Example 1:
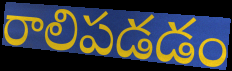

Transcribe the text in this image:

రాలిపడడం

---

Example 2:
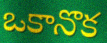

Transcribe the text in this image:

ఒకానొక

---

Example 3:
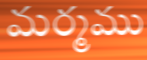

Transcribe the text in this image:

మర్మము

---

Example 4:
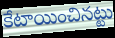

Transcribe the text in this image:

కేటాయించినట్టు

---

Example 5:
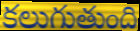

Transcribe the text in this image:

కలుగుతుంది